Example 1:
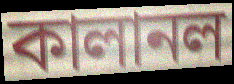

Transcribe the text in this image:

কালানল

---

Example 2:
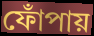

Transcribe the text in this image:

ফোঁপায়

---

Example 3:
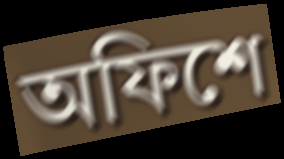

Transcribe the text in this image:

অফিশে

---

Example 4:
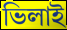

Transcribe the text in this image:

ভিলাই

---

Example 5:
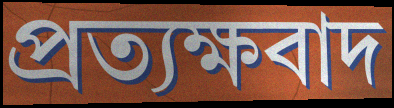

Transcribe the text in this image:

প্রত্যক্ষবাদ